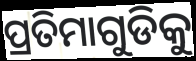
ପ୍ରତିମାଗୁଡିକୁ